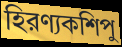
হিরণ্যকশিপু